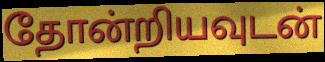
தோன்றியவுடன்